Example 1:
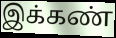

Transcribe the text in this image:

இக்கண்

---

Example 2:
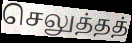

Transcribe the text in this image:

செலுத்தத்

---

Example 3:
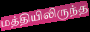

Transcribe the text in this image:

மத்தியிலிருந்த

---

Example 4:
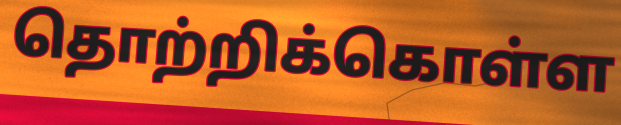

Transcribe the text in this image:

தொற்றிக்கொள்ள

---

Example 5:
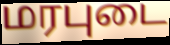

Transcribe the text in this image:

மரபுடை